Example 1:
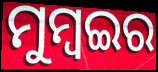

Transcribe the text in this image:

ମୁମ୍ବଇର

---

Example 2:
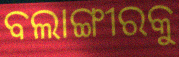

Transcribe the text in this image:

ବଲାଙ୍ଗୀରକୁ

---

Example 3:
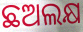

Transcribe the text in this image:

ଛଅଲକ୍ଷ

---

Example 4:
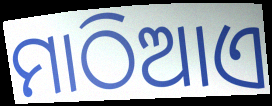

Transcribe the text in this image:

ମାଠିଆଏ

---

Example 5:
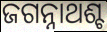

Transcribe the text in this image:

ଜଗନ୍ନାଥଶ୍ଚ